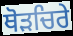
ਥੋੜਚਿਰੇ